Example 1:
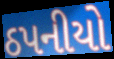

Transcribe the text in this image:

ઠપનીયો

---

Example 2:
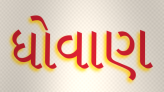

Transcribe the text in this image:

ધોવાણ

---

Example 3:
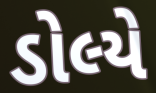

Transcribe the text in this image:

ડોલ્યે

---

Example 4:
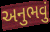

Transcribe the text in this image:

અનુભવું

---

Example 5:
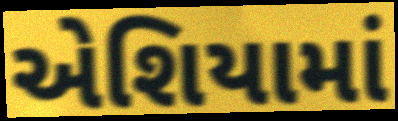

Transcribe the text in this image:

એશિયામાં